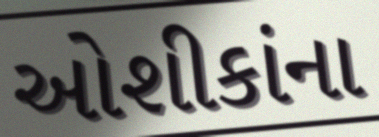
ઓશીકાંના